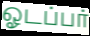
ஓடப்பர்